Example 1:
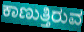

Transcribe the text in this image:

ಕಾಣುತ್ತಿರುವ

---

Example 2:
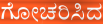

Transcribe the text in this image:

ಗೋಚರಿಸಿದ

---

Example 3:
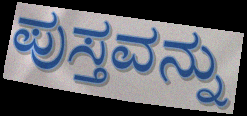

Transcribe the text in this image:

ಪುಸ್ತವನ್ನು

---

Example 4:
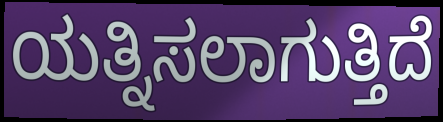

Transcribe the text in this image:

ಯತ್ನಿಸಲಾಗುತ್ತಿದೆ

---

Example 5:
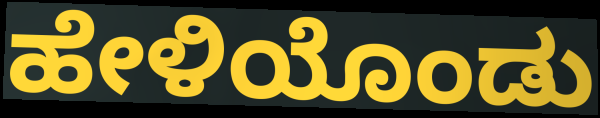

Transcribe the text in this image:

ಹೇಳಿಯೊಂಡು